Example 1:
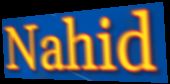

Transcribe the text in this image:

Nahid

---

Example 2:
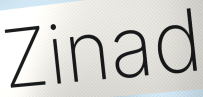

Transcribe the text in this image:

Zinad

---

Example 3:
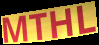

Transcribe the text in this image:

MTHL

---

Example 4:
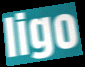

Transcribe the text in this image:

ligo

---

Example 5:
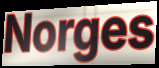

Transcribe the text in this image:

Norges